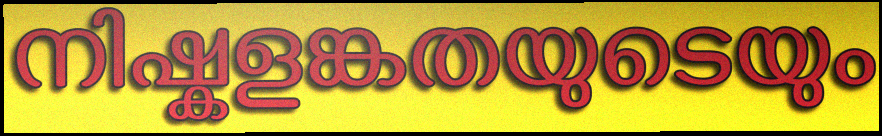
നിഷ്കളങ്കതയുടെയും